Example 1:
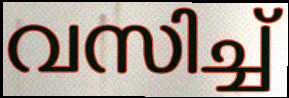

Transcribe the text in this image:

വസിച്ച്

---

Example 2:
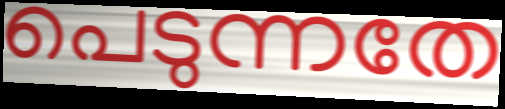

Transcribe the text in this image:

പെടുന്നതേ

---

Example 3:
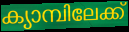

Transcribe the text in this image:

ക്യാമ്പിലേക്ക്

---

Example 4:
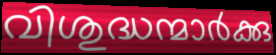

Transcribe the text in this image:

വിശുദ്ധന്മാർക്കു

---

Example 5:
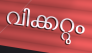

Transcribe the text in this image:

വിക്കറ്റും